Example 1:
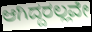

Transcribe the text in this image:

ಆಗಿದ್ದರಲ್ಲವೇ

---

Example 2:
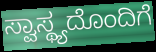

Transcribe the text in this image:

ಸ್ವಾಸ್ಥ್ಯದೊಂದಿಗೆ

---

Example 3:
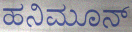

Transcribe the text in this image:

ಹನಿಮೂನ್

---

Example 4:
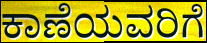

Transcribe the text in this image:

ಕಾಣೆಯವರಿಗೆ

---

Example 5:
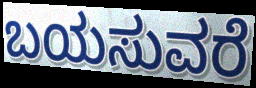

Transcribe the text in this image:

ಬಯಸುವರೆ